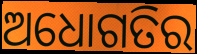
ଅଧୋଗତିର